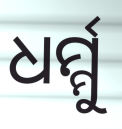
ଧର୍ମ୍ମୁ